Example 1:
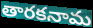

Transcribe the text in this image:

తారకనామ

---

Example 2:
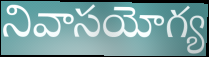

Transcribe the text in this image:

నివాసయోగ్య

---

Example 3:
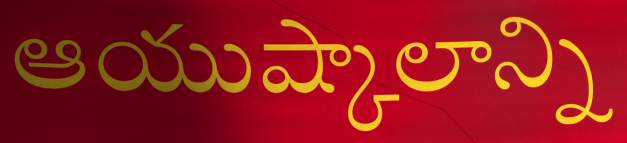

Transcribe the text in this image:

ఆయుష్కాలాన్ని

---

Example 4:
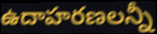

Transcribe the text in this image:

ఉదాహరణలన్నీ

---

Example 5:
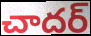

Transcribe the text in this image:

చాదర్